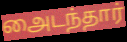
அைடந்தார்